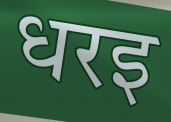
धरइ